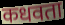
कधवता